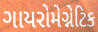
ગાયરોમેગ્નેટિક